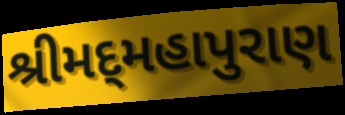
શ્રીમદ્‌મહાપુરાણ